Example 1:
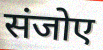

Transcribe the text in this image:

संजोए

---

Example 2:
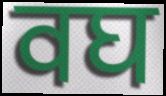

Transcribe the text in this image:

वघ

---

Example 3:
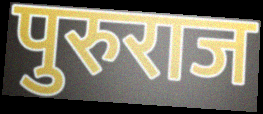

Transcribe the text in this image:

पुरुराज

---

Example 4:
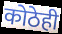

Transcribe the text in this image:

कोठेही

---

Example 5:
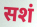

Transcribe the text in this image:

सशं